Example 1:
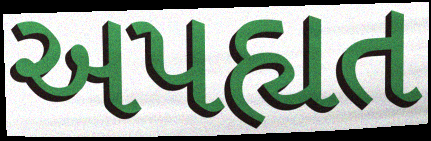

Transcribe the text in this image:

અપહ્યત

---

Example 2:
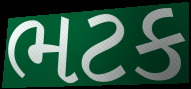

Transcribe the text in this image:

ભટક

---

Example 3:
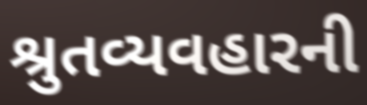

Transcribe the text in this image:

શ્રુતવ્યવહારની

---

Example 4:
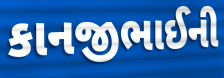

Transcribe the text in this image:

કાનજીભાઈની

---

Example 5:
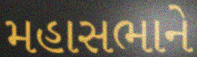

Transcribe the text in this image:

મહાસભાને